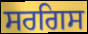
ਸਰਗਿਸ